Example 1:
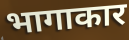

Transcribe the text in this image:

भागाकार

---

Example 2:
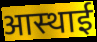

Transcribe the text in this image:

आस्थाई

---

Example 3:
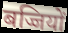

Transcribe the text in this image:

बज्जियों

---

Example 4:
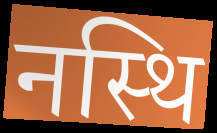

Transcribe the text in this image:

नस्थि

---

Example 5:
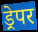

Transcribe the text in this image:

ड्रेपर